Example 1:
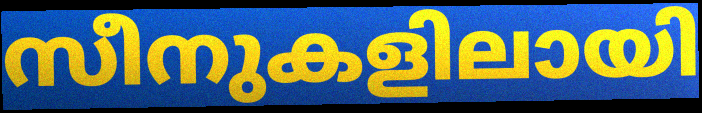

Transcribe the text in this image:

സീനുകളിലായി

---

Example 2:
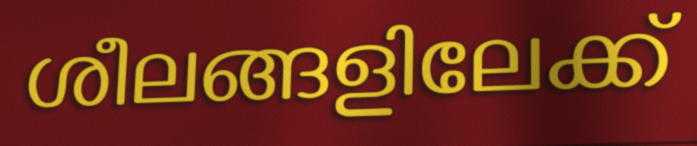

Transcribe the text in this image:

ശീലങ്ങളിലേക്ക്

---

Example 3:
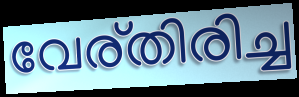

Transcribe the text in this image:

വേര്തിരിച്ച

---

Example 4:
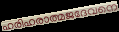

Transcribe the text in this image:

ഹരിഹരാത്മജദേവനെ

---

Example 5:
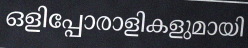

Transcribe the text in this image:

ഒളിപ്പോരാളികളുമായി